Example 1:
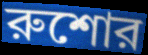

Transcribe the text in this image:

রুশোর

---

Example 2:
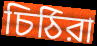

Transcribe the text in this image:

চিঠিরা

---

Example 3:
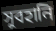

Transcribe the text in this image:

সুবহানি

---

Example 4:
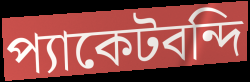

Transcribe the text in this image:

প্যাকেটবন্দি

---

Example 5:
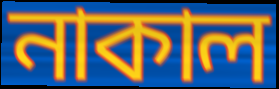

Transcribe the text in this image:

নাকাল